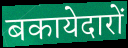
बकायेदारों